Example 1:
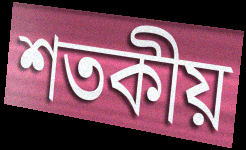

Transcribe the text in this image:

শতকীয়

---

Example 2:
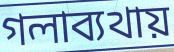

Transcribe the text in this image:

গলাব্যথায়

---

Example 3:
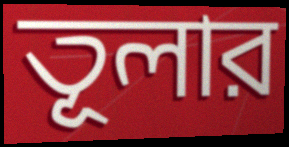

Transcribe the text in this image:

তূলার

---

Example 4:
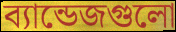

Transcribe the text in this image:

ব্যান্ডেজগুলো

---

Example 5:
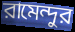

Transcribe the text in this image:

রামেন্দুর